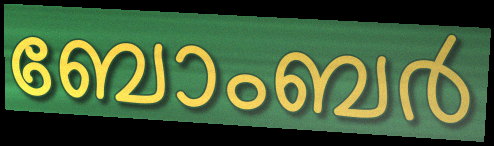
ബോംബർ